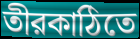
তীরকাঠিতে